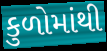
કુળોમાંથી